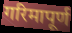
गरिमापूर्ण